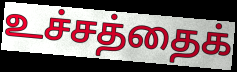
உச்சத்தைக்